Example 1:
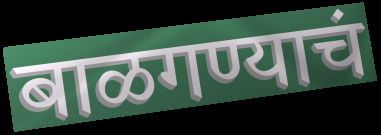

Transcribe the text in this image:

बाळगण्याचं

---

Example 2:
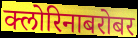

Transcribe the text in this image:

क्लोरिनाबरोबर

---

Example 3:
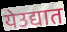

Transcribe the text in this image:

येउद्यात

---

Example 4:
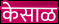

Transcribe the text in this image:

केसाळ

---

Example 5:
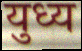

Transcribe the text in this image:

युध्य